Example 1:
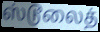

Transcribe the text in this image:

ஸ்டூலைத்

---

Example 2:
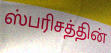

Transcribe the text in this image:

ஸ்பரிசத்தின்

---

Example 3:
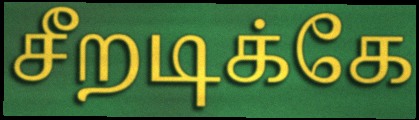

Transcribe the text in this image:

சீறடிக்கே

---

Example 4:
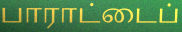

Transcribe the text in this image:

பாராட்டைப்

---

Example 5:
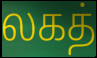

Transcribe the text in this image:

லகத்